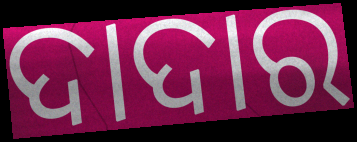
ଦାଦାର